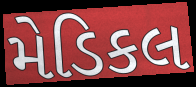
મેડિકલ